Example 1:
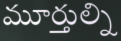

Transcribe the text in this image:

మూర్తుల్ని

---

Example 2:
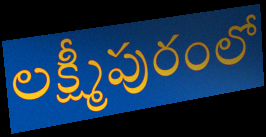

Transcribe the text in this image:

లక్ష్మీపురంలో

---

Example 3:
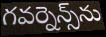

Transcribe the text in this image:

గవర్నెన్స్‌ను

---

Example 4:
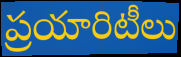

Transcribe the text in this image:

ప్రయారిటీలు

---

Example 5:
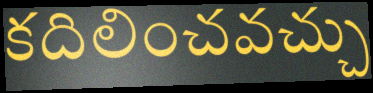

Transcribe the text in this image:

కదిలించవచ్చు